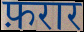
फ़रार